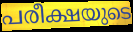
പരീക്ഷയുടെ